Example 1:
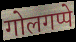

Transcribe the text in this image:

गोलगप्पे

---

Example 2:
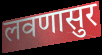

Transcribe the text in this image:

लवणासुर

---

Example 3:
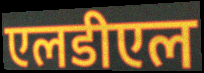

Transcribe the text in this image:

एलडीएल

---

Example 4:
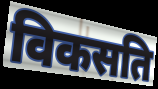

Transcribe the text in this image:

विकसति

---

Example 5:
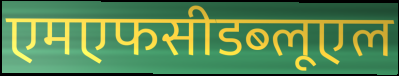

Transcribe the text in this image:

एमएफसीडब्‍लूएल